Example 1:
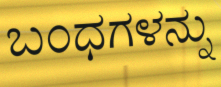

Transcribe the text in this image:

ಬಂಧಗಳನ್ನು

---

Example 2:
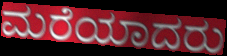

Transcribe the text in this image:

ಮರೆಯಾದರು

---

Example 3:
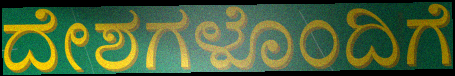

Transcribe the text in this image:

ದೇಶಗಳೊಂದಿಗೆ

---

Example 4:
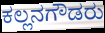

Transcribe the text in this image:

ಕಲ್ಲನಗೌಡರು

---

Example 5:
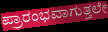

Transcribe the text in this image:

ಪ್ರಾರಂಭವಾಗುತ್ತಲೇ